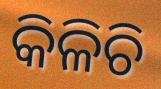
କିଳିଚି